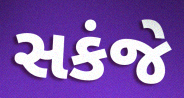
સકંજે